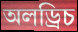
অলড্রিচ